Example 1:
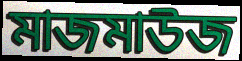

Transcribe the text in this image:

মাজমাউজ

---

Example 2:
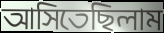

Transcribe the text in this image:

আসিতেছিলাম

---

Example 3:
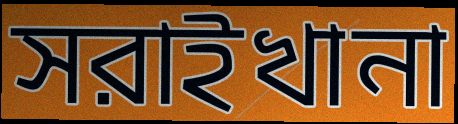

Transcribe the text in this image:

সরাইখানা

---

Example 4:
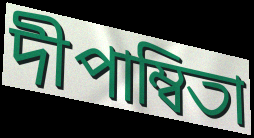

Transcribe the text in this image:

দীপাম্বিতা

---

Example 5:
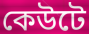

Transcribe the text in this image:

কেউটে